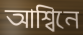
আশ্বিনে